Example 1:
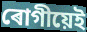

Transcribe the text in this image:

ৰোগীয়েই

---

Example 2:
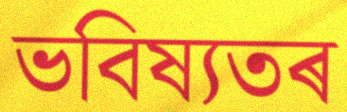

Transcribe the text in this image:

ভবিষ্যতৰ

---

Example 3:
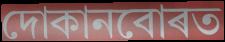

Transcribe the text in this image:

দোকানবোৰত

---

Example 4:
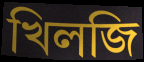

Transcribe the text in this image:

খিলজি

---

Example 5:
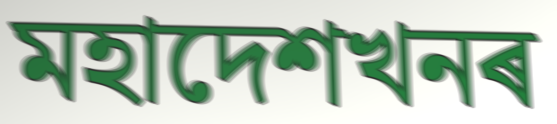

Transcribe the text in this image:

মহাদেশখনৰ